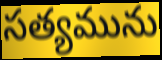
సత్యమును